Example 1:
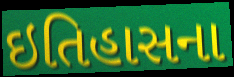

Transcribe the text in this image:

ઇતિહાસના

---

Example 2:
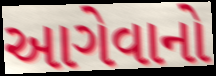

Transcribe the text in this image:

આગેવાનો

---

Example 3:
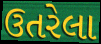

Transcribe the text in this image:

ઉતરેલા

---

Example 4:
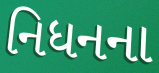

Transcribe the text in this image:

નિધનના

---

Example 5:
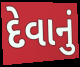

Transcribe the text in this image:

દેવાનું